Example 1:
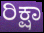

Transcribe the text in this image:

ರಿಕ್ಷಾ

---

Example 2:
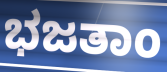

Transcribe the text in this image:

ಭಜತಾಂ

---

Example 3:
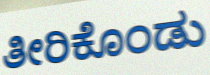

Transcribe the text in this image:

ತೀರಿಕೊಂಡು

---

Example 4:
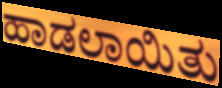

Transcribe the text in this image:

ಹಾಡಲಾಯಿತು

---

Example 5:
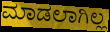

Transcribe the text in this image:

ಮಾಡಲಾಗಿಲ್ಲ